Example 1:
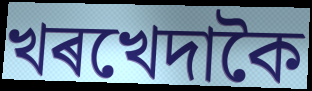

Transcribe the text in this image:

খৰখেদাকৈ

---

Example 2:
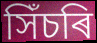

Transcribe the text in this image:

সিঁচৰি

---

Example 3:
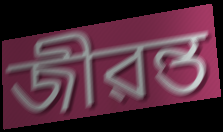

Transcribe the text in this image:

জীৱন্ত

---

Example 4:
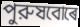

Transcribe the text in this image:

পুৰুষবোৰে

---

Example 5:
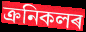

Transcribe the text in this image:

ক্ৰনিকলৰ